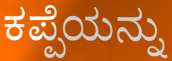
ಕಪ್ಪೆಯನ್ನು